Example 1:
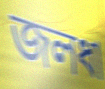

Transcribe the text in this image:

জলধা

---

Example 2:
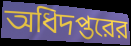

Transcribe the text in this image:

অধিদপ্তরের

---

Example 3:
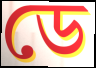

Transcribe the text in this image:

ডে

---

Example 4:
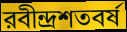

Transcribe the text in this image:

রবীন্দ্রশতবর্ষ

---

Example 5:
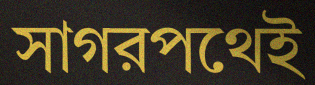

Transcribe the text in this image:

সাগরপথেই